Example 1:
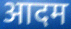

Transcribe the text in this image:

आदम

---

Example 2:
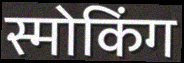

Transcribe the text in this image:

स्‍मोकिंग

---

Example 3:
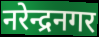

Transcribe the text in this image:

नरेन्द्रनगर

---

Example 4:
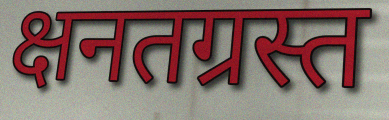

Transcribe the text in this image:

क्षनतग्रस्त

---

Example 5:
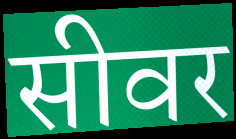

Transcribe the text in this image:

सीवर